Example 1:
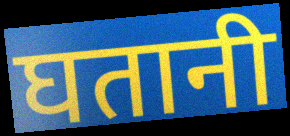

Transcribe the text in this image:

घतानी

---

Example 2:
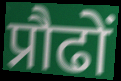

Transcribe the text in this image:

प्रौढों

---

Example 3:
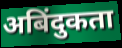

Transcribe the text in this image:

अबिंदुकता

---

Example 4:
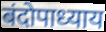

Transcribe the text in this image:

बंदोपाध्‍याय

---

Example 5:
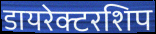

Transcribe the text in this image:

डायरेक्टरशिप